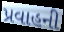
પ્રવાહની